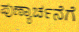
ಪುಣ್ಯಾರ್ಚನೆಗೆ